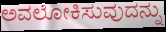
ಅವಲೋಕಿಸುವುದನ್ನು